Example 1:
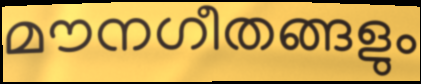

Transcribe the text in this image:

മൗനഗീതങ്ങളും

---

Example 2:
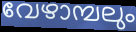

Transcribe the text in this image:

വേഴാമ്പലും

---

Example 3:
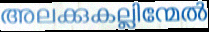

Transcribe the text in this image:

അലക്കുകല്ലിന്മേൽ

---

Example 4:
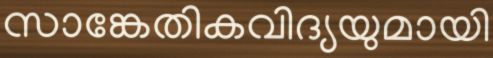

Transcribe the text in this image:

സാങ്കേതികവിദ്യയുമായി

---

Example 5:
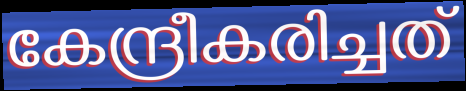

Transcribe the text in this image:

കേന്ദ്രീകരിച്ചത്